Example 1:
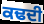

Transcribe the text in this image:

ਕਢਦੀ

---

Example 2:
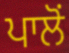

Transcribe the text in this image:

ਪਾਲੋਂ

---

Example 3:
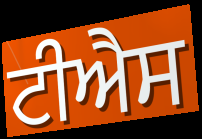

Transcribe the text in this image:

ਟੀਐਸ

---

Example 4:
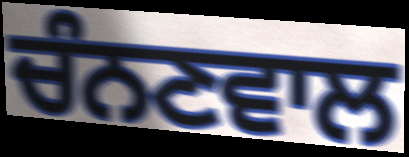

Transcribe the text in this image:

ਚੰਨਣਵਾਲ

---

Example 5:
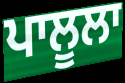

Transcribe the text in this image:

ਪਾਲੂਲਾ